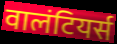
वालंटियर्स